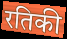
रतिकी